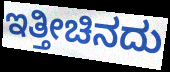
ಇತ್ತೀಚಿನದು